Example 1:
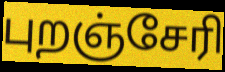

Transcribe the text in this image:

புறஞ்சேரி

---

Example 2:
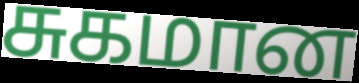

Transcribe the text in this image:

சுகமான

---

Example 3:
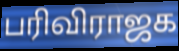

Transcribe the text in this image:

பரிவிராஜக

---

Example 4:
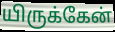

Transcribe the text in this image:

யிருக்கேன்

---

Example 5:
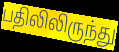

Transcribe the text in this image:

பதிலிலிருந்து